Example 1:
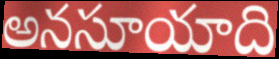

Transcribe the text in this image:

అనసూయాది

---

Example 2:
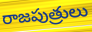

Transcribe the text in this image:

రాజపుత్రులు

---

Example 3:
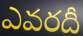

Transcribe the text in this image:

ఎవరదీ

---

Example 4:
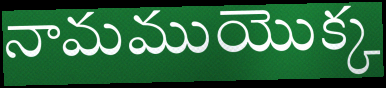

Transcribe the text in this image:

నామముయొక్క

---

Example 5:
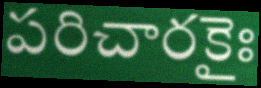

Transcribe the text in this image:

పరిచారకైః